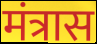
मंत्रास